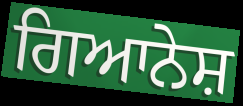
ਗਿਆਨੇਸ਼